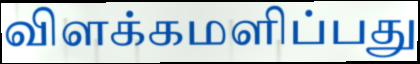
விளக்கமளிப்பது